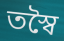
তস্বৈ